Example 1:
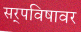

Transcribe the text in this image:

सर्पविषावर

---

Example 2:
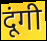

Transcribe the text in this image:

दूंगी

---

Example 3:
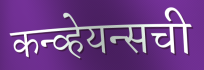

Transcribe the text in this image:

कन्व्हेयन्सची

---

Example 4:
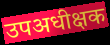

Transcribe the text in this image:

उपअधीक्षक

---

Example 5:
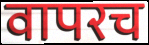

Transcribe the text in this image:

वापरच